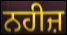
ਨਹੀਜ਼